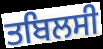
ਤਬਿਲਸੀ